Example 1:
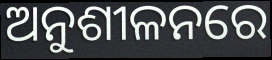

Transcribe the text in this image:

ଅନୁଶୀଳନରେ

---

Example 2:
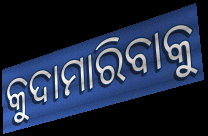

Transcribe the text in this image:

କୁଦାମାରିବାକୁ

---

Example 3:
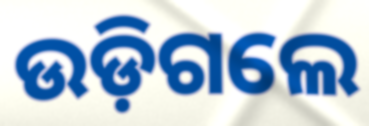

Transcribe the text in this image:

ଉଡ଼ିଗଲେ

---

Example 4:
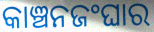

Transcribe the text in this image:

କାଞ୍ଚନଜଂଘାର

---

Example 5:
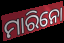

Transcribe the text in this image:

ମାରିନୋ